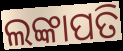
ଲଙ୍କାପତି